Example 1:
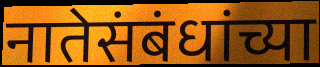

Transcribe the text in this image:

नातेसंबंधांच्या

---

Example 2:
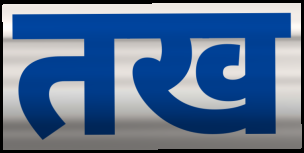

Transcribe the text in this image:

तख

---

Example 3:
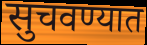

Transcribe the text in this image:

सुचवण्यात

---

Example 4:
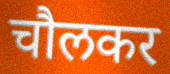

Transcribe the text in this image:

चौलकर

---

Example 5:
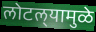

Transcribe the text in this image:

लोटल्यामुळे